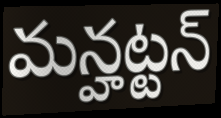
మన్హట్టన్